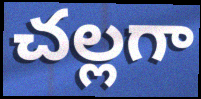
చల్లగా